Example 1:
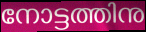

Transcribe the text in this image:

നോട്ടത്തിനു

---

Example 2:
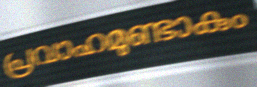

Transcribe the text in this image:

പ്രവാഹമുണ്ടാകും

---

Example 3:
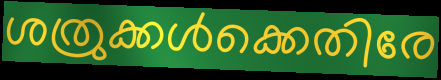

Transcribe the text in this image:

ശത്രുക്കൾക്കെതിരേ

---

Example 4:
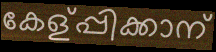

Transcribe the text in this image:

കേള്പ്പിക്കാന്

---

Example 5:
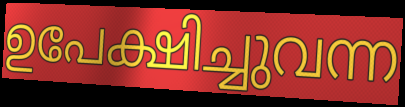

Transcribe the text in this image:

ഉപേക്ഷിച്ചുവന്ന